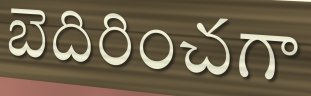
బెదిరించగా